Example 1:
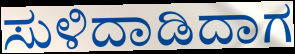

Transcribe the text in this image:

ಸುಳಿದಾಡಿದಾಗ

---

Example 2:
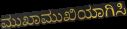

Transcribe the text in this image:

ಮುಖಾಮುಖಿಯಾಗಿಸಿ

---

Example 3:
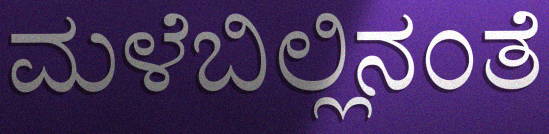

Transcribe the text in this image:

ಮಳೆಬಿಲ್ಲಿನಂತೆ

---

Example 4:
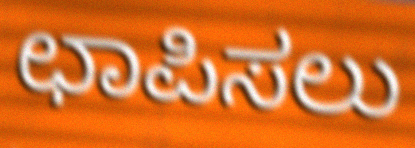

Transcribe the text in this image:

ಛಾಪಿಸಲು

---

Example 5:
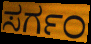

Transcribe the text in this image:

ಸರ್ಗಂ